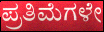
ಪ್ರತಿಮೆಗಳೇ